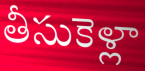
తీసుకెళ్లా